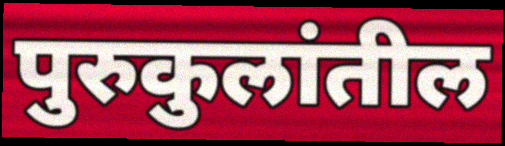
पुरुकुलांतील